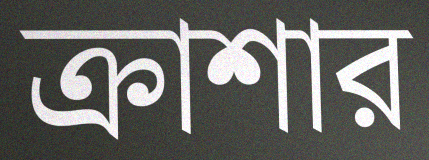
ক্রাশার